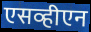
एसव्हीएन